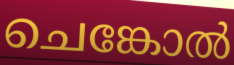
ചെങ്കോൽ